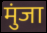
मुंजा